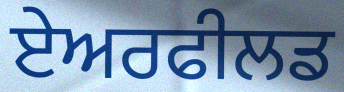
ਏਅਰਫੀਲਡ